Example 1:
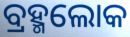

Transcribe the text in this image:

ବ୍ରହ୍ମଲୋକ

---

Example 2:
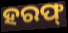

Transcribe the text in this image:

ହରଫ୍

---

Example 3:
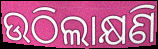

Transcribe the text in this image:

ଉଠିଲାକ୍ଷଣି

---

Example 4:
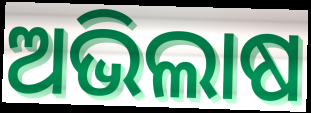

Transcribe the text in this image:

ଅଭିଲାଷ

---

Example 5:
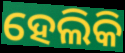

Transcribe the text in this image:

ହେଲିକି